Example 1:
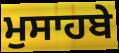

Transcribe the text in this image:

ਮੁਸਾਹਬੇ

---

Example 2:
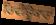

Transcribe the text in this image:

ਰਿਵੀਊਕਾਰਾਂ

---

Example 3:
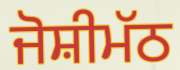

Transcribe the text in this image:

ਜੋਸ਼ੀਮੱਠ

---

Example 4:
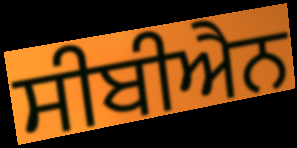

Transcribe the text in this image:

ਸੀਬੀਐਨ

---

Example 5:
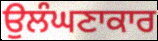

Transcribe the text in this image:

ਉਲੰਘਣਾਕਾਰ